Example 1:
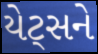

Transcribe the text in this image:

યેટ્સને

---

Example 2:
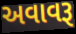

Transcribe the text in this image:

અવાવરૂ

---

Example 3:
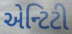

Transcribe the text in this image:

એન્ટિટી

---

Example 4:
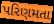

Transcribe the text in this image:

પરિણમતા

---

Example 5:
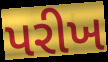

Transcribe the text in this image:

પરીખ